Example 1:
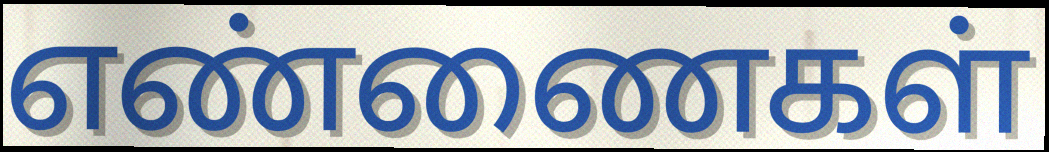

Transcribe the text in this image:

எண்ணைகள்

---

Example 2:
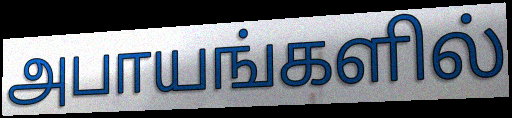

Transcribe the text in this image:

அபாயங்களில்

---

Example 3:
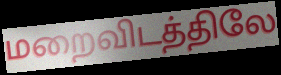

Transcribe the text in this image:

மறைவிடத்திலே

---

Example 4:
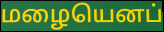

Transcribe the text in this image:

மழையெனப்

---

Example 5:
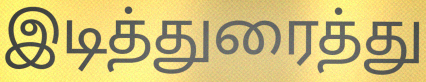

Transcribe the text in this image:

இடித்துரைத்து